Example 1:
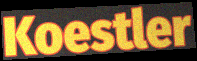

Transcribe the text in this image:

Koestler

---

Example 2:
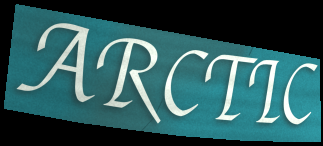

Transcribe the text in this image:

ARCTIC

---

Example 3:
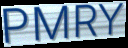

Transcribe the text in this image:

PMRY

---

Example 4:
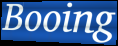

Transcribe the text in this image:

Booing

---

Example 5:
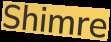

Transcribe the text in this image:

Shimre